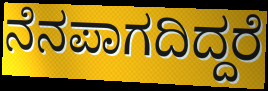
ನೆನಪಾಗದಿದ್ದರೆ